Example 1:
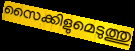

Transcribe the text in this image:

സൈക്കിളുമെടുത്തു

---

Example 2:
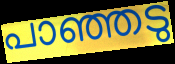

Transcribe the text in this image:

പാഞ്ഞടു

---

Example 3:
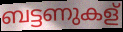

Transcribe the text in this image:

ബട്ടണുകള്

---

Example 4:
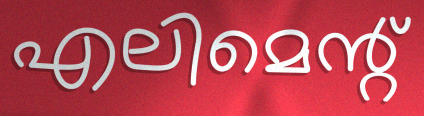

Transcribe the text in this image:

എലിമെന്റ്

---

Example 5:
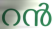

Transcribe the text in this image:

റൻ